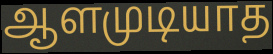
ஆளமுடியாத